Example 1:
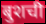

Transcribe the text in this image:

बुशची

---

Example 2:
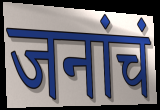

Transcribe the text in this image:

जनांचं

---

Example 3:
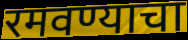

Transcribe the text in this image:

रमवण्याचा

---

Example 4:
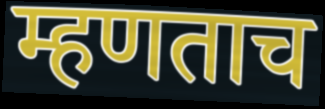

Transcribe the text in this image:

म्हणताच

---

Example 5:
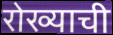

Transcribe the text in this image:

रोख्याची